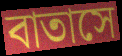
বাতাসে